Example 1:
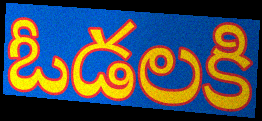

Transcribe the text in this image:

ఓడలకి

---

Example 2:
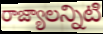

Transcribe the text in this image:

రాజ్యాలన్నిటి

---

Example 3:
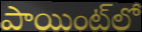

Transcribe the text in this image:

పాయింట్‌లో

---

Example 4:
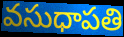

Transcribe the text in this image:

వసుధాపతి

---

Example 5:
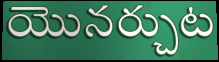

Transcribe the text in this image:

యొనర్చుట